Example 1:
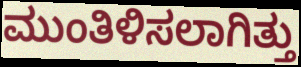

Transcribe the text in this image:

ಮುಂತಿಳಿಸಲಾಗಿತ್ತು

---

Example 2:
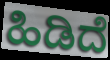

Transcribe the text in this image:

ಹಿಡಿದೆ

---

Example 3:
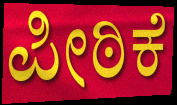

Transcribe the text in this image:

ಪೀಠಿಕೆ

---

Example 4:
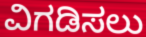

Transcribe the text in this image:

ವಿಗಡಿಸಲು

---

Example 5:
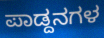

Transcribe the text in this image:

ಪಾಡ್ದನಗಳ